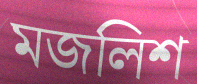
মজলিশ